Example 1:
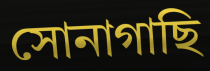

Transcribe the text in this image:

সোনাগাছি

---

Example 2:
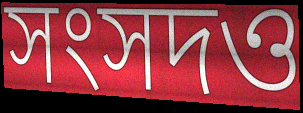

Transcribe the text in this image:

সংসদও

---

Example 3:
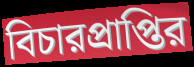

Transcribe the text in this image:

বিচারপ্রাপ্তির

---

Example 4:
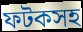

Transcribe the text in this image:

ফটকসহ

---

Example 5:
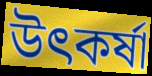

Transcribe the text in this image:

উৎকর্ষা